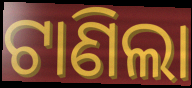
ଟାଣିଲା